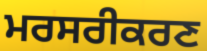
ਮਰਸਰੀਕਰਣ